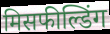
मिसफील्डिंग